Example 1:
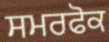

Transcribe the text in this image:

ਸਮਰਫੋਕ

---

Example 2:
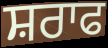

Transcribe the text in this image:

ਸ਼ਰਾਫ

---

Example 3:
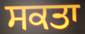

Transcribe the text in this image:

ਸਕਤਾ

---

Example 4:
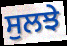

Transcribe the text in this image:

ਸੁਲਝੇ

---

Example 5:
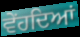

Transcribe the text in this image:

ਵੇਂਹਦਿਆਂ